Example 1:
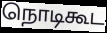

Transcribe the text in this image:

நொடிகூட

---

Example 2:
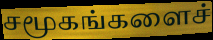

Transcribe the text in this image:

சமூகங்களைச்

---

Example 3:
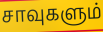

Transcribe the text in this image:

சாவுகளும்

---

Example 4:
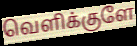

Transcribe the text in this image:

வெளிக்குளே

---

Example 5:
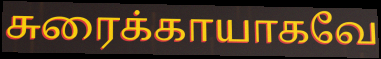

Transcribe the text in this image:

சுரைக்காயாகவே